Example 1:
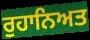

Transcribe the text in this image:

ਰੁਹਾਨਿਅਤ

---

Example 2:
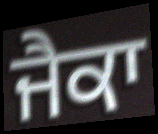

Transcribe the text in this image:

ਜੈਕਾ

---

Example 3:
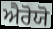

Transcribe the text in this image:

ਐਰੋਯੋ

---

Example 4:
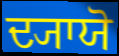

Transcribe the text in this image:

ਦ੍ਯਾਯੋ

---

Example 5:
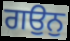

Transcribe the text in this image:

ਗਉਨੁ